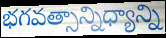
భగవత్సాన్నిధ్యాన్ని